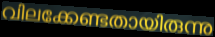
വിലക്കേണ്ടതായിരുന്നു